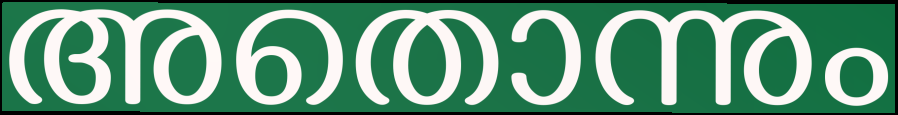
അതൊന്നും